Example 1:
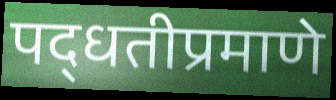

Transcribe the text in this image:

पद्धतीप्रमाणे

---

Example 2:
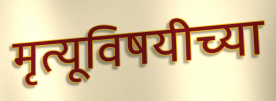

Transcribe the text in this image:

मृत्यूविषयीच्या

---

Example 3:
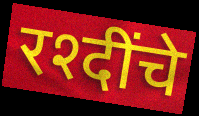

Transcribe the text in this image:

रश्दींचे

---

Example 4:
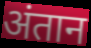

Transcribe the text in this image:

अंतान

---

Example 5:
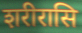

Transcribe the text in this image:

शरीरासि